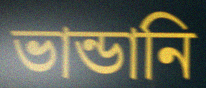
ভান্ডানি